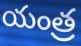
యంత్ర